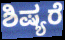
ಶಿಷ್ಯರೆ